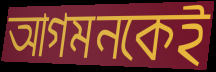
আগমনকেই